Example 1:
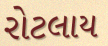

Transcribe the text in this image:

રોટલાય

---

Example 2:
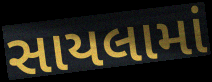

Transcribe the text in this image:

સાયલામાં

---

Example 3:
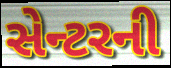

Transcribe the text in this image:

સેન્ટરની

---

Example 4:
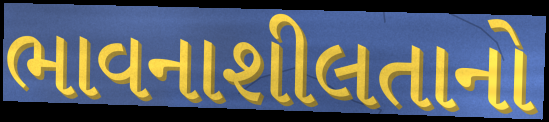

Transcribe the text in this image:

ભાવનાશીલતાનો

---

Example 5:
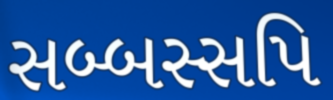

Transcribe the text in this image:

સબ્બસ્સપિ